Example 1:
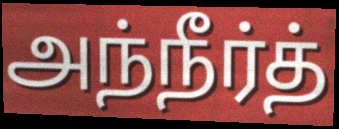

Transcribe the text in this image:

அந்நீர்த்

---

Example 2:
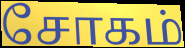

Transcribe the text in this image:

சோகம்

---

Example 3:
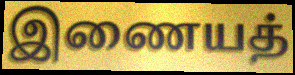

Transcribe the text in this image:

இணையத்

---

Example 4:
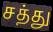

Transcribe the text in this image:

சத்து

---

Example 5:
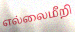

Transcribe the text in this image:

எல்லைமீறி